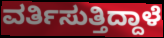
ವರ್ತಿಸುತ್ತಿದ್ದಾಳೆ